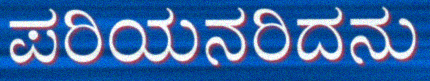
ಪರಿಯನರಿದನು